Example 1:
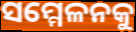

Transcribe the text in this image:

ସମ୍ମେଳନକୁ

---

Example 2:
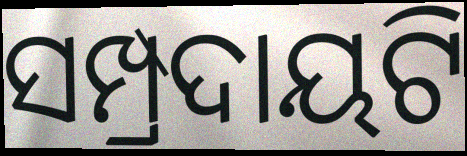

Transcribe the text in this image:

ସମ୍ପ୍ରଦାୟଟି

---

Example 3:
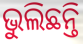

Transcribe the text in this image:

ଭୁଲିଛନ୍ତି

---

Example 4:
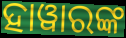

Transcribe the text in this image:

ହାୱାରଙ୍କ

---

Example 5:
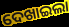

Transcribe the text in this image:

ଦେଖାଇଲା